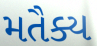
મતૈક્ય